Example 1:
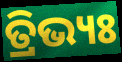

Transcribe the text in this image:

ତ୍ରିଭ୍ୟଃ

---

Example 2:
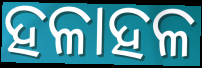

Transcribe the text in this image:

ହଳାହଳ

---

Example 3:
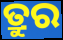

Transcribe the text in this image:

ତ୍ରୁର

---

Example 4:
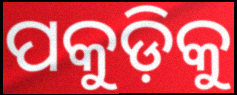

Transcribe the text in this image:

ପକୁଡ଼ିକୁ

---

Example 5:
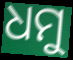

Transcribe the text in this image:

ଧମୁ